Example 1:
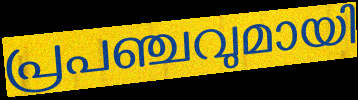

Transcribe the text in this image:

പ്രപഞ്ചവുമായി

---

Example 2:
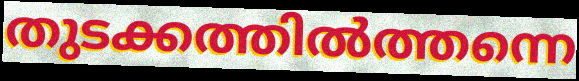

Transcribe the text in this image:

തുടക്കത്തിൽത്തന്നെ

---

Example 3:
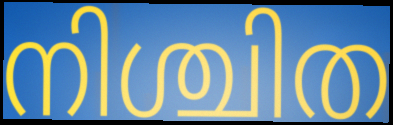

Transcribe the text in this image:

നിശ്ചിത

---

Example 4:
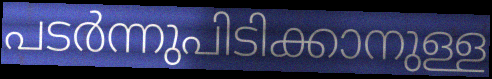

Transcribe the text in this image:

പടർന്നുപിടിക്കാനുള്ള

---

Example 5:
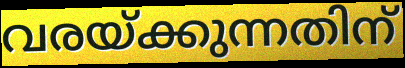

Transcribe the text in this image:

വരയ്ക്കുന്നതിന്